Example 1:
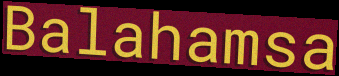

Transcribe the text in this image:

Balahamsa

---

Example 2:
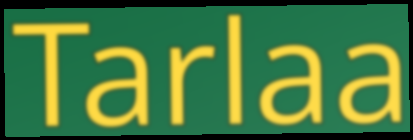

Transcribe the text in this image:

Tarlaa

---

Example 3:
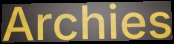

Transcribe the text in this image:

Archies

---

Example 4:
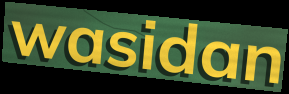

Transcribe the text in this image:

wasidan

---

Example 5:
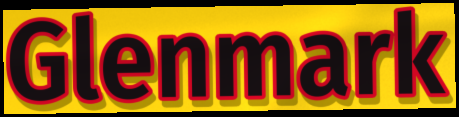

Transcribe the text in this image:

Glenmark